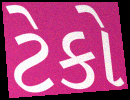
ટેકો